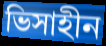
ভিসাহীন